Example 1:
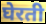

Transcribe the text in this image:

घेरती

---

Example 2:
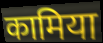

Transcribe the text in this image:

कामिया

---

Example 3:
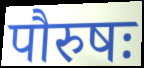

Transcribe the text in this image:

पौरुषः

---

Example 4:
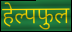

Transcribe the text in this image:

हेल्पफुल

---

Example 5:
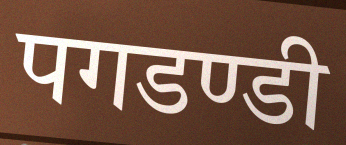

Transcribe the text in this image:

पगडण्डी